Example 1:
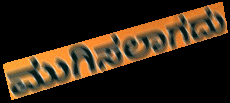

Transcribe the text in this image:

ಮುಗಿಸಲಾಗದು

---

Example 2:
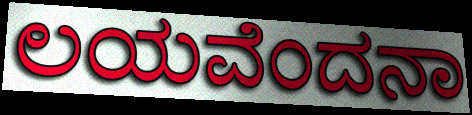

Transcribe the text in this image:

ಲಯವೆಂದನಾ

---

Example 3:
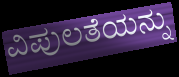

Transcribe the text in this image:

ವಿಪುಲತೆಯನ್ನು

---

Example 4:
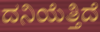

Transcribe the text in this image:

ದನಿಯೆತ್ತಿದೆ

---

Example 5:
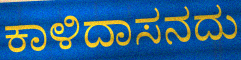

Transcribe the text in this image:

ಕಾಳಿದಾಸನದು